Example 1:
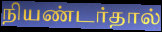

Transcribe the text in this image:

நியண்டர்தால்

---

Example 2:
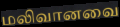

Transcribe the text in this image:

மலிவானவை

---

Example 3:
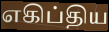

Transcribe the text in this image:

எகிப்திய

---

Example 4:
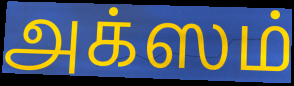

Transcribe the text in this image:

அக்ஸம்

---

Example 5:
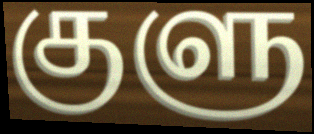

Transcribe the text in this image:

குளு